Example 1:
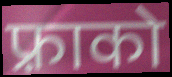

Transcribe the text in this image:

फ़्राको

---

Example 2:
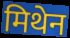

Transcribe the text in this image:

मिथेन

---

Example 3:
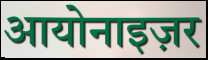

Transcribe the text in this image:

आयोनाइज़र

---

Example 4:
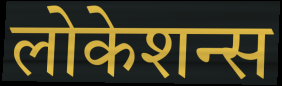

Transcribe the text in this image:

लोकेशन्स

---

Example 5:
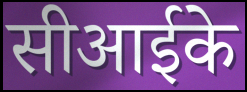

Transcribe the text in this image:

सीआईके